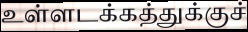
உள்ளடக்கத்துக்குச்